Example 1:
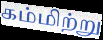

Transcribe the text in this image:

கம்மிற்று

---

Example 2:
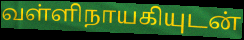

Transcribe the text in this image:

வள்ளிநாயகியுடன்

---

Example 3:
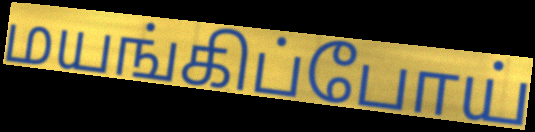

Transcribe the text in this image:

மயங்கிப்போய்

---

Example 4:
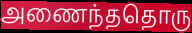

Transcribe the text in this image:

அணைந்ததொரு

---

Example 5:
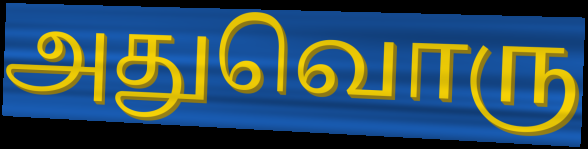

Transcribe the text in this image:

அதுவொரு